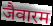
जैवारम